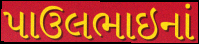
પાઉલભાઇનાં